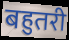
बहुतरी